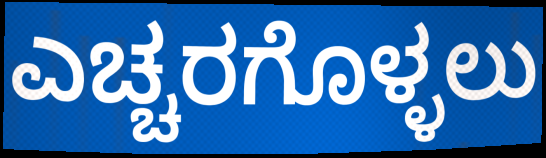
ಎಚ್ಚರಗೊಳ್ಳಲು